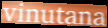
vinutana